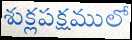
శుక్లపక్షములో